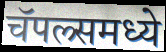
चॅपल्समध्ये